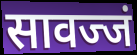
सावज्जं